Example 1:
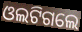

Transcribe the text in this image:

ଓଲଟିଗଲେ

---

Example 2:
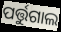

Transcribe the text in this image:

ପର୍ତ୍ତୁଗାଲ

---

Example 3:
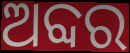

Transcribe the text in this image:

ଅବ୍ଦର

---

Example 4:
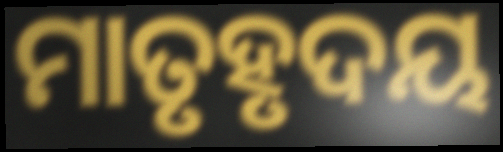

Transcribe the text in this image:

ମାତୃହୃଦୟ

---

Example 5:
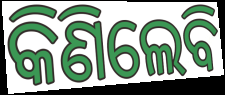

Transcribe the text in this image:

କିଣିଲେବି